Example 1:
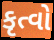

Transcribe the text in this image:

કૃત્વો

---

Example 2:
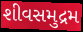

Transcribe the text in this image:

શીવસમુદ્રમ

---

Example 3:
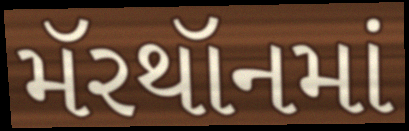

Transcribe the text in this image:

મૅરથૉનમાં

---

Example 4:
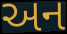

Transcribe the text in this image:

અન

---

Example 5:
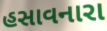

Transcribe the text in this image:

હસાવનારા